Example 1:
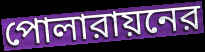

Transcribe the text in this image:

পোলারায়নের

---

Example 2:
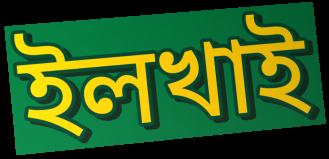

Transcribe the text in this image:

ইলখাই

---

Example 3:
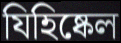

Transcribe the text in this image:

যিহিষ্কেল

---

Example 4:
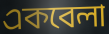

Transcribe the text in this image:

একবেলা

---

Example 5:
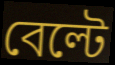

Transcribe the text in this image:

বেল্টে